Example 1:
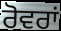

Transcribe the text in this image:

ਰੋਵਰਾਂ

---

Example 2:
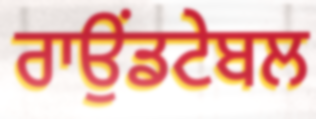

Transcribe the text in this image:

ਰਾਉਂਡਟੇਬਲ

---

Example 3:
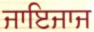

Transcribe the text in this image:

ਜਾਇਜਾਜ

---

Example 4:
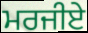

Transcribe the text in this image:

ਮਰਜੀਏ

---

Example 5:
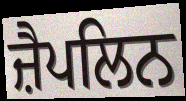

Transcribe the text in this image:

ਜ਼ੈਪਲਿਨ